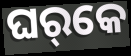
ଘର୍‌କେ